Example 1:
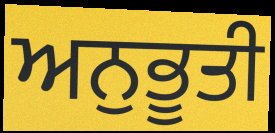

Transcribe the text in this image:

ਅਨੁਭੂਤੀ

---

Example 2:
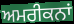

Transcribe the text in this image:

ਅਮਰੀਕਨਾਂ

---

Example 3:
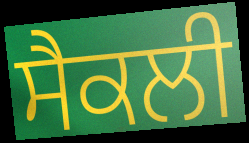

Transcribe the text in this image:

ਸੈਕਲੀ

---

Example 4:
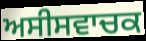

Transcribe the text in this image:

ਅਸੀਸਵਾਚਕ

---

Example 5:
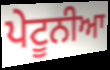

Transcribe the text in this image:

ਪੇਟੂਨੀਆ